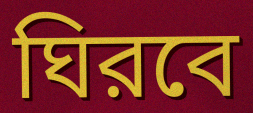
ঘিরবে